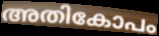
അതികോപം